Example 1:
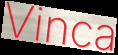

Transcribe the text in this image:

Vinca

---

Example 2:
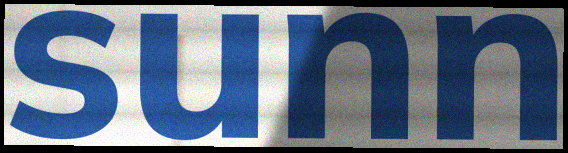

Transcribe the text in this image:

sunn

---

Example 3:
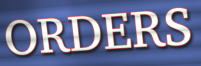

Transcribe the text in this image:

ORDERS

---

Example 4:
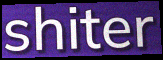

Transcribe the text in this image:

shiter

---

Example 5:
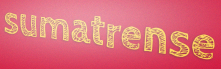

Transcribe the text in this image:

sumatrense